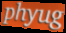
phyug